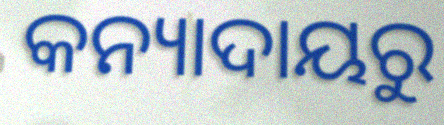
କନ୍ୟାଦାୟରୁ